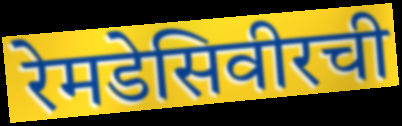
रेमडेसिवीरची